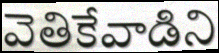
వెతికేవాడిని